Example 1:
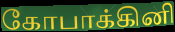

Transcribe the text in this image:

கோபாக்கினி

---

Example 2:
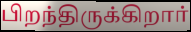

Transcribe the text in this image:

பிறந்திருக்கிறார்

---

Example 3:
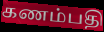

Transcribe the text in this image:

கணம்பதி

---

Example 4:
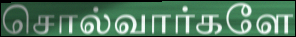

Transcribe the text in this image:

சொல்வார்களே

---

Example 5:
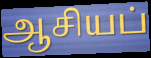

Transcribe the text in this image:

ஆசியப்